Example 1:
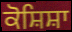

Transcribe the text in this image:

ਕੋਸ਼ਿਸ਼ਾ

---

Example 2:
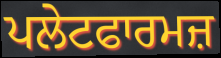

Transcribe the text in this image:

ਪਲੇਟਫਾਰਮਜ਼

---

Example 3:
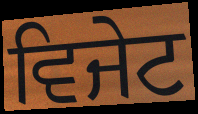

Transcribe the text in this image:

ਵਿਜੇਟ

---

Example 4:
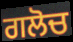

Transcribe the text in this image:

ਗਲੋਚ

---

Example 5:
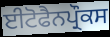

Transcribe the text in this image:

ਈਟੋਫੈਨਪ੍ਰੌਕਸ